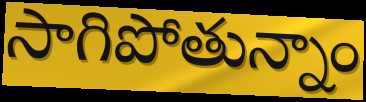
సాగిపోతున్నాం